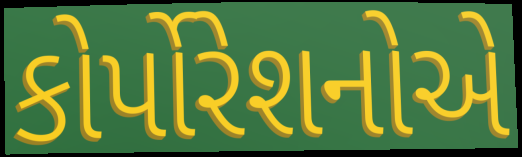
કોર્પોરેશનોએ